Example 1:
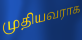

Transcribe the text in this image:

முதியவராக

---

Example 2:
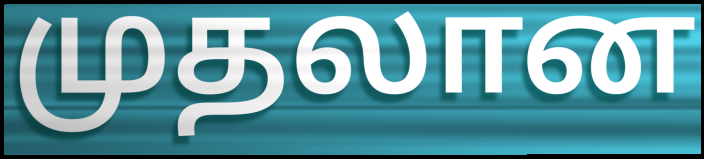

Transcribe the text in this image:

முதலான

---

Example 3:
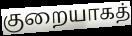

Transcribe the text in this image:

குறையாகத்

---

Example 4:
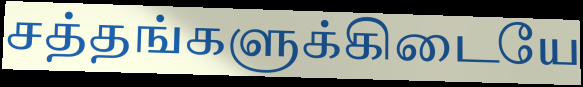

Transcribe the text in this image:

சத்தங்களுக்கிடையே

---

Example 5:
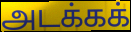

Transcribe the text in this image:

அடக்கக்